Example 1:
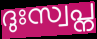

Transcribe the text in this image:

ദുഃസ്വപ്ന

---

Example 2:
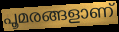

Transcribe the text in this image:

പൂമരങ്ങളാണ്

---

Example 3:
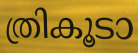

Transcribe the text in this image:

ത്രികൂടാ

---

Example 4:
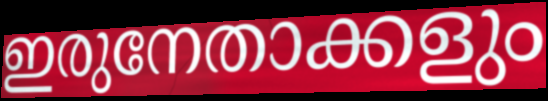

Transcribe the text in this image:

ഇരുനേതാക്കളും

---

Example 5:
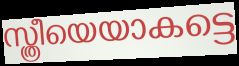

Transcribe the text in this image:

സ്ത്രീയെയാകട്ടെ